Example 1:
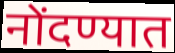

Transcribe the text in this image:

नोंदण्यात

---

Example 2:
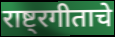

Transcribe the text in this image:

राष्ट्रगीताचे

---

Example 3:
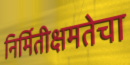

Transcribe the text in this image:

निर्मितीक्षमतेचा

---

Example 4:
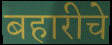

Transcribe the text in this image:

बहारीचे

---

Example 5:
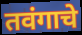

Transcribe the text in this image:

तवंगाचे